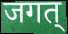
जगत्